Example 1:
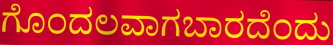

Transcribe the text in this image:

ಗೊಂದಲವಾಗಬಾರದೆಂದು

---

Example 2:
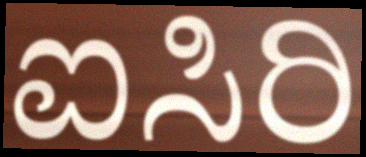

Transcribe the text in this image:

ಐಸಿರಿ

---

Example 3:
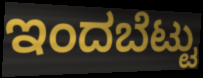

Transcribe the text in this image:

ಇಂದಬೆಟ್ಟು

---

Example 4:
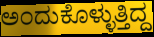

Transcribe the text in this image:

ಅಂದುಕೊಳ್ಳುತ್ತಿದ್ದ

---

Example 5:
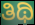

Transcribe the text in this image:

ತಿಥಿ